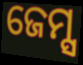
ଜେମ୍ସ